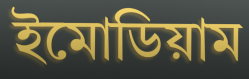
ইমোডিয়াম